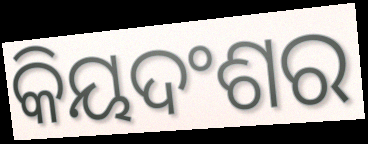
କିୟଦଂଶର